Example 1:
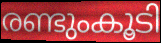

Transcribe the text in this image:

രണ്ടുംകൂടി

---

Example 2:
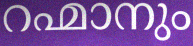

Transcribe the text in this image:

റഹ്മാനും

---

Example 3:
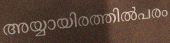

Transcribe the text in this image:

അയ്യായിരത്തിൽപരം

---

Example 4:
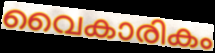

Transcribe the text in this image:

വൈകാരികം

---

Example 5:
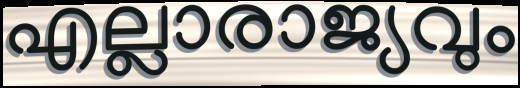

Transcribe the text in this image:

എല്ലാരാജ്യവും